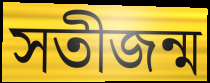
সতীজন্ম